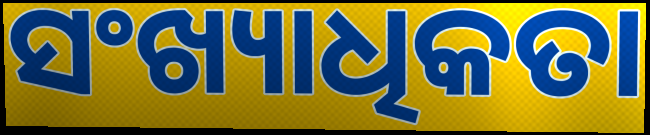
ସଂଖ୍ୟାଧିକତା